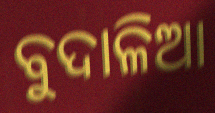
ବୁଦାଳିଆ